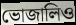
ভোজালিও